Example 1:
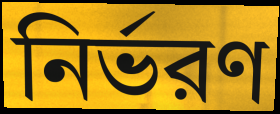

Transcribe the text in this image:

নির্ভরণ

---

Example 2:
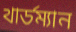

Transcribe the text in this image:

থার্ডম্যান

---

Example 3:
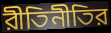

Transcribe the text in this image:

রীতিনীতির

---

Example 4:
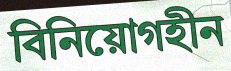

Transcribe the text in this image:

বিনিয়োগহীন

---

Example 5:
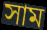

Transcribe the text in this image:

সাম